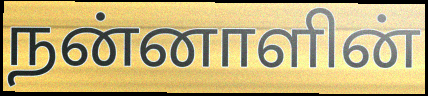
நன்னாளின்